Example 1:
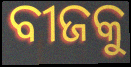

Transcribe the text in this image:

ବୀଜକୁ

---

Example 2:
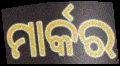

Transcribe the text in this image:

ମାର୍କର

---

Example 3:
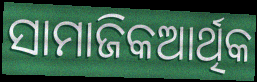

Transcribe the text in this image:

ସାମାଜିକଆର୍ଥିକ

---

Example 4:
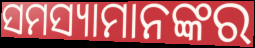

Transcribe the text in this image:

ସମସ୍ୟାମାନଙ୍କର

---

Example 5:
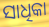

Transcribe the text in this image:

ସାଧିକା